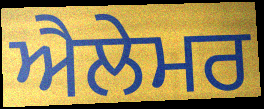
ਐਲੇਮਰ